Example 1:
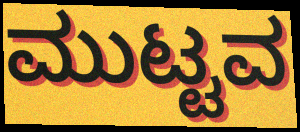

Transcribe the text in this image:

ಮುಟ್ಟವ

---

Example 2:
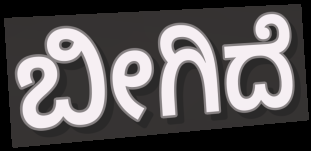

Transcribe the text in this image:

ಬೀಗಿದೆ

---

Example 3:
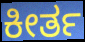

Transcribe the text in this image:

ಕೀರ್ತ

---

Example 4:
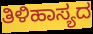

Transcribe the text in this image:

ತಿಳಿಹಾಸ್ಯದ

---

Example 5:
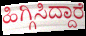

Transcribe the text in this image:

ಹಿಗ್ಗಿಸಿದ್ದಾರೆ